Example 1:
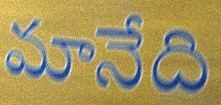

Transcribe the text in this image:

మానేది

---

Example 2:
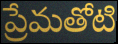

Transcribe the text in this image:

ప్రేమతోటి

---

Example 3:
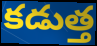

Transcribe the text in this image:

కడుత్త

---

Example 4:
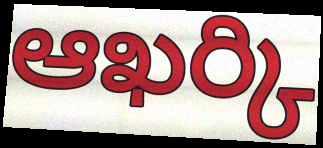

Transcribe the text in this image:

ఆఖర్కి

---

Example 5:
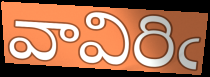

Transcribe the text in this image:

వావిరిఁ